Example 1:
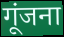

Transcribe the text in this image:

गूंजना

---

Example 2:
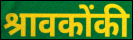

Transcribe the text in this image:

श्रावकोंकी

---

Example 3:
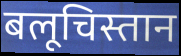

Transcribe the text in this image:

बलूचिस्तान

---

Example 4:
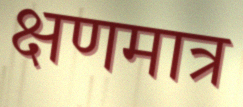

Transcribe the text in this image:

क्षणमात्र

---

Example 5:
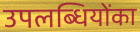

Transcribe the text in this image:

उपलब्धियोंका